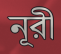
নূরী